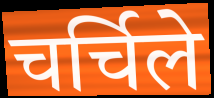
चर्चिले